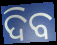
ଦିବ